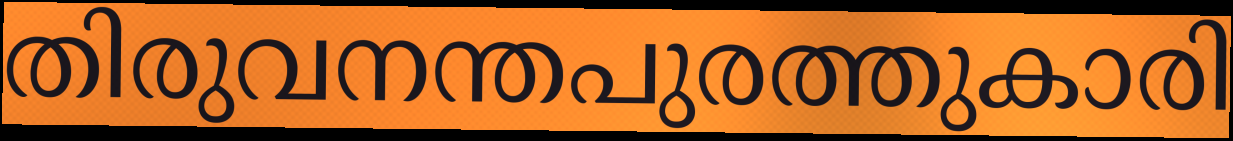
തിരുവനന്തപുരത്തുകാരി